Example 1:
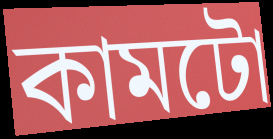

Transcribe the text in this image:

কামটো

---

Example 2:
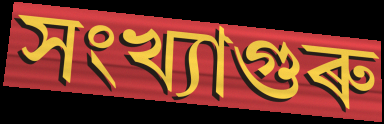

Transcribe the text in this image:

সংখ্যাগুৰু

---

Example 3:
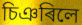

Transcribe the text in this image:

চিঞৰিলে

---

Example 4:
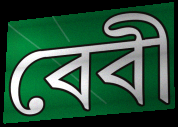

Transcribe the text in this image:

বেবী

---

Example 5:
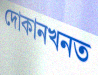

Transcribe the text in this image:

দোকানখনত